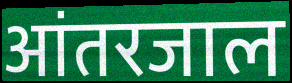
आंतरजाल